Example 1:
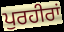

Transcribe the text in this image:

ਪੁਰਹੀਰਾਂ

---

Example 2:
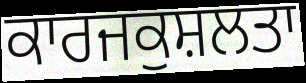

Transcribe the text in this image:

ਕਾਰਜਕੁਸ਼ਲਤਾ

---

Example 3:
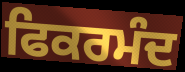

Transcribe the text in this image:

ਫਿਕਰਮੰਦ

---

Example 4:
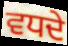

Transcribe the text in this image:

ਵਧਦੇ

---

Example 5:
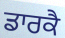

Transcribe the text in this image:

ਡਾਰਕੈ